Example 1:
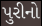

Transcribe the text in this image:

પુરીનો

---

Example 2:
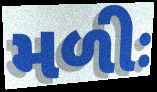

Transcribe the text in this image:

મળીઃ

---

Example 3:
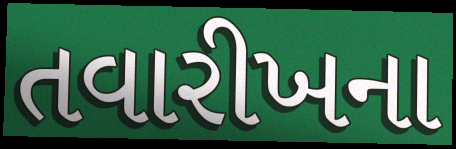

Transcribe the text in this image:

તવારીખના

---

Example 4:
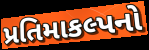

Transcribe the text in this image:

પ્રતિમાકલ્પનો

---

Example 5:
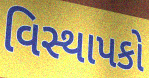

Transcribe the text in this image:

વિસ્થાપકો